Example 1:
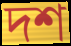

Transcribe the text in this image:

দশ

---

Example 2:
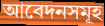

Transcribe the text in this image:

আবেদনসমূহ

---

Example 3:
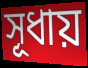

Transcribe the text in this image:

সূধায়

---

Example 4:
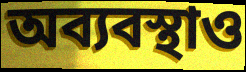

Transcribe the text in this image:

অব্যবস্থাও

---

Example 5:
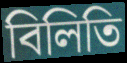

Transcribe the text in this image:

বিলিতি